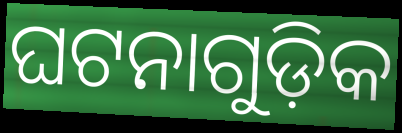
ଘଟନାଗୁଡ଼ିକ